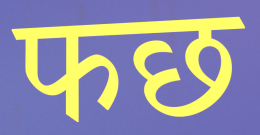
फछ